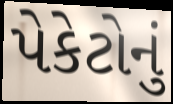
પેકેટોનું